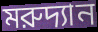
মৰুদ্যান